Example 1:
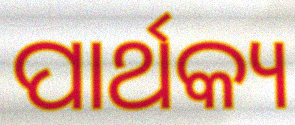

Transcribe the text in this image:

ପାର୍ଥକ୍ୟ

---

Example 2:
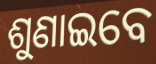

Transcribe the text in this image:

ଶୁଣାଇବେ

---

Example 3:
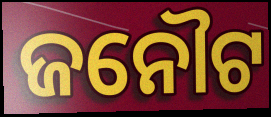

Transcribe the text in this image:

ଜନୌଟ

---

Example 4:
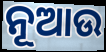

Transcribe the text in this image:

ନୂଆଉ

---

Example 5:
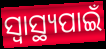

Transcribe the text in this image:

ସ୍ଵାସ୍ଥ୍ୟପାଇଁ